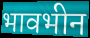
भावभीन